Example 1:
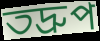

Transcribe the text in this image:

তদ্ৰুপ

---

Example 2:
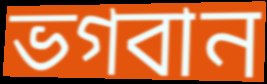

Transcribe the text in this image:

ভগবান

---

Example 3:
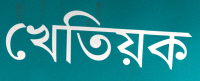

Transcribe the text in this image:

খেতিয়ক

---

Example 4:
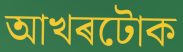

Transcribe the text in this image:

আখৰটোক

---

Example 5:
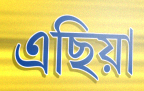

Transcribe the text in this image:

এছিয়া